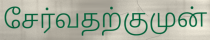
சேர்வதற்குமுன்